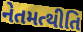
નેતમત્થીતિ